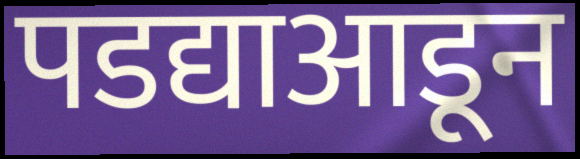
पडद्याआडून